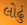
લોઢું